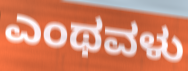
ಎಂಥವಳು